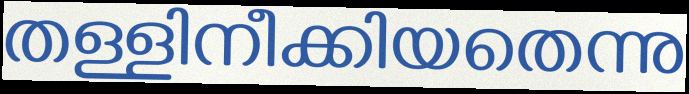
തള്ളിനീക്കിയതെന്നു